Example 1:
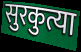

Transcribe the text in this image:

सुरकुत्या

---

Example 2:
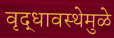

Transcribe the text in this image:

वृद्धावस्थेमुळे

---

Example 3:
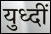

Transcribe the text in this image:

युध्दीं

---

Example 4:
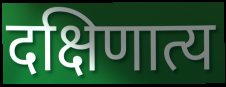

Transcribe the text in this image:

दक्षिणात्य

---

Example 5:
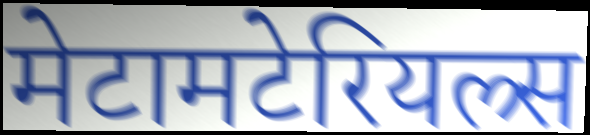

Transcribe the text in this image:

मेटामटेरियल्स